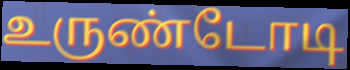
உருண்டோடி